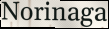
Norinaga